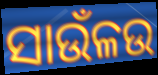
ସାଉଁଳଉ